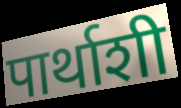
पार्थाशी